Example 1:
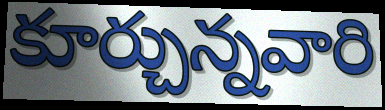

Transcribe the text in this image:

కూర్చున్నవారి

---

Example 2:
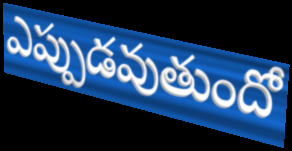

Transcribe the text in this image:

ఎప్పుడవుతుందో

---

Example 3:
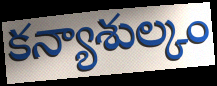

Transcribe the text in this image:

కన్యాశుల్కం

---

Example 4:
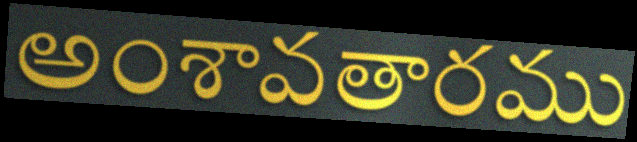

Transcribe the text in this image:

అంశావతారము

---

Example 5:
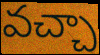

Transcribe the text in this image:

వచ్చా